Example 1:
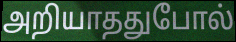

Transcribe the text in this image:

அறியாததுபோல்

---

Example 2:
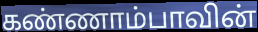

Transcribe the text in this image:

கண்ணாம்பாவின்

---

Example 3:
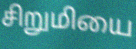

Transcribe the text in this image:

சிறுமியை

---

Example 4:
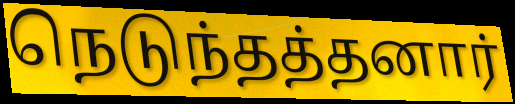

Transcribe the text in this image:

நெடுந்தத்தனார்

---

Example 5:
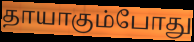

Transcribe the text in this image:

தாயாகும்போது